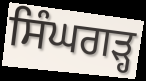
ਸਿੰਘਗੜ੍ਹ